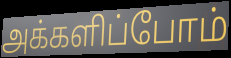
அக்களிப்போம்